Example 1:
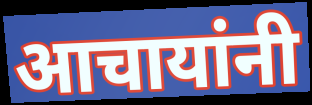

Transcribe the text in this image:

आचायांनी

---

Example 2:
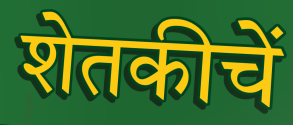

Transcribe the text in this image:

शेतकीचें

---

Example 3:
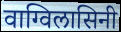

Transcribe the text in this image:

वाग्विलासिनी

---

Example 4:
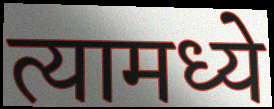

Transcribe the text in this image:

त्यामध्ये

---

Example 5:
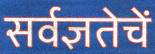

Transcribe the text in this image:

सर्वज्ञतेचें